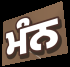
ਮੰਨ